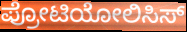
ಪ್ರೋಟಿಯೋಲಿಸಿಸ್